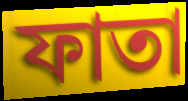
ফাতা